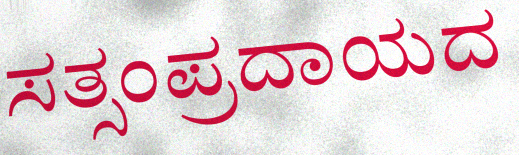
ಸತ್ಸಂಪ್ರದಾಯದ